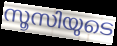
സൂസിയുടെ